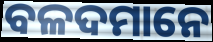
ବଳଦମାନେ